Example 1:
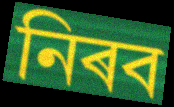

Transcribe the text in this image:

নিৰব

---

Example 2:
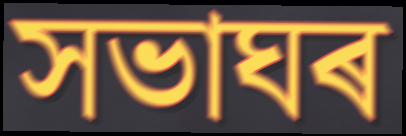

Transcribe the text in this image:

সভাঘৰ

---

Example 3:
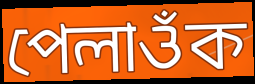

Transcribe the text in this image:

পেলাওঁক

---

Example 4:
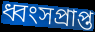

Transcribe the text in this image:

ধ্বংসপ্ৰাপ্ত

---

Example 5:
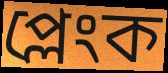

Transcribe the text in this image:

প্লেংক